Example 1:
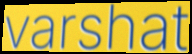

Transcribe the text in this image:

varshat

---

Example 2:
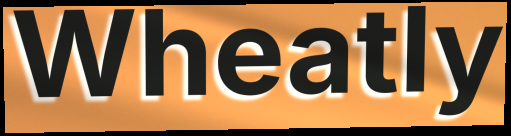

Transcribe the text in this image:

Wheatly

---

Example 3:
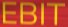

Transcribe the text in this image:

EBIT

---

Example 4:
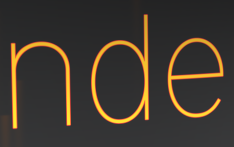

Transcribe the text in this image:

nde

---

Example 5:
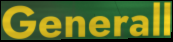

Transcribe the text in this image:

Generall